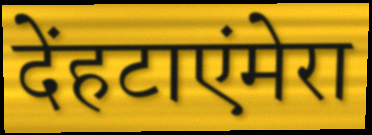
देंहटाएंमेरा